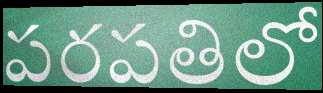
పరపతిలో